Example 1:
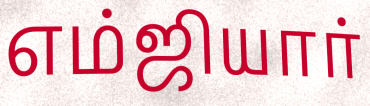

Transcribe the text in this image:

எம்ஜியார்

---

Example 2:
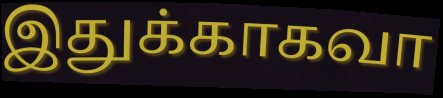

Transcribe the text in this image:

இதுக்காகவா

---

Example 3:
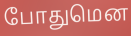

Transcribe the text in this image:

போதுமென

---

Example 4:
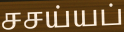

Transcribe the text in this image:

சசய்யப்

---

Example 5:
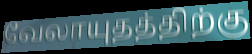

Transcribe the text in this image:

வேலாயுதத்திற்கு